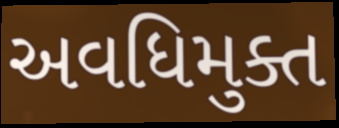
અવધિમુક્ત